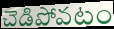
చెడిపోవటం